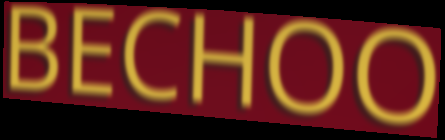
BECHOO